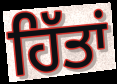
ਹਿੱਤਾਂ